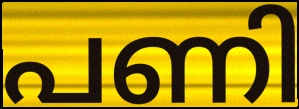
പണി